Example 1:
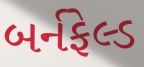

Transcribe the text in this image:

બર્નફેલ્ડ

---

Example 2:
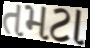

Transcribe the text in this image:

તમટા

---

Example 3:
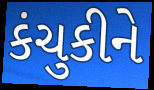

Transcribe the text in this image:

કંચુકીને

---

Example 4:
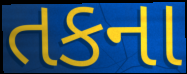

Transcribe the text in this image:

તકના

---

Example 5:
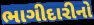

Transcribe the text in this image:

ભાગીદારીનો